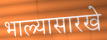
भाल्यासारखे